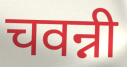
चवन्नी